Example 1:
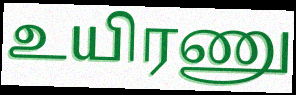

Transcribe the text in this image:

உயிரணு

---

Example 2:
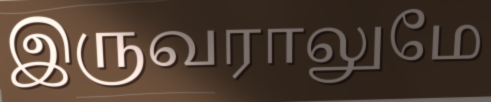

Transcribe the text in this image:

இருவராலுமே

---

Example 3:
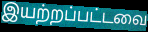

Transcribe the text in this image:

இயற்றப்பட்டவை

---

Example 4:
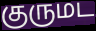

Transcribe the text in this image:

குருமட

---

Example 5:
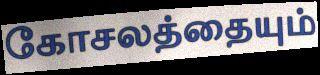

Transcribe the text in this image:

கோசலத்தையும்